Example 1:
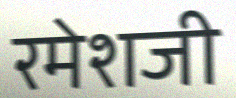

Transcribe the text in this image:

रमेशजी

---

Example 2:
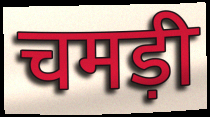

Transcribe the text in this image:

चमड़ी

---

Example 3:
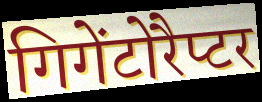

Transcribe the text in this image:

गिगेंटोरैप्टर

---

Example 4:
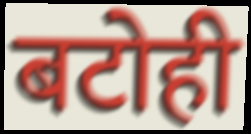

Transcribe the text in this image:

बटोही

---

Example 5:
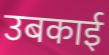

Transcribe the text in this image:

उबकाई